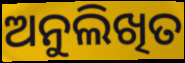
ଅନୁଲିଖିତ